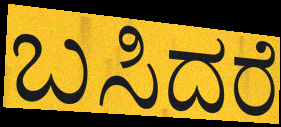
ಬಸಿದರೆ